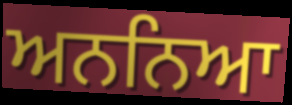
ਅਨਨਿਆ